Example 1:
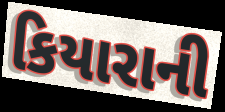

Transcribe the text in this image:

કિયારાની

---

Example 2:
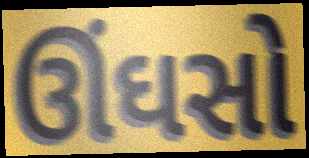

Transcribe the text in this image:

ઊંઘસો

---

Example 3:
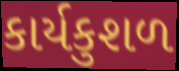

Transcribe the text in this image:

કાર્યકુશળ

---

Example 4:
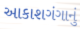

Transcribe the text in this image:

આકાશગંગાનું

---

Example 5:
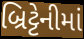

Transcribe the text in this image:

બ્રિટ્ટેનીમાં